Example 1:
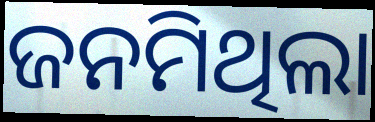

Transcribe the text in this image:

ଜନମିଥିଲା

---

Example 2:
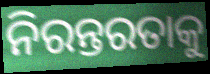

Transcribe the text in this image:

ନିରନ୍ତରତାକୁ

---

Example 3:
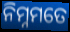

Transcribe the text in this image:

ନିମ୍ନମତେ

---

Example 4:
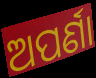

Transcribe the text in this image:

ଅପର୍ଣା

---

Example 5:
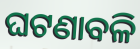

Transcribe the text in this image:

ଘଟଣାବଳି